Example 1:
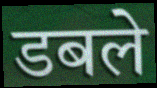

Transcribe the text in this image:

डबले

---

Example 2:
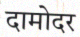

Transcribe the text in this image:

दामोदर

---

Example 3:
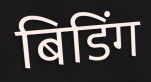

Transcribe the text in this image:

बिडिंग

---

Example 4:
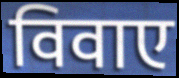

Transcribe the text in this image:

विवाए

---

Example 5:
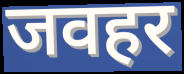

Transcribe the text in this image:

जवहर